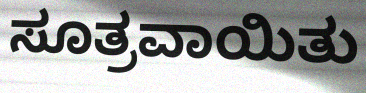
ಸೂತ್ರವಾಯಿತು